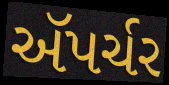
ઍપર્ચર